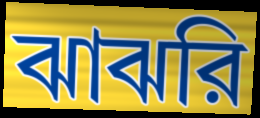
ঝাঝরি